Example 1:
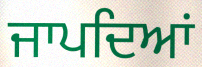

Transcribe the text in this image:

ਜਾਪਦਿਆਂ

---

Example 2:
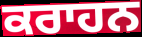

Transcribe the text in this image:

ਕਰਾਹਨ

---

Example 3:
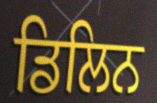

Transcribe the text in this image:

ਡਿਲਿਨ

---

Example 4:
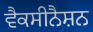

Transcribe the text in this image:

ਵੈਕਸੀਨੈਸ਼ਨ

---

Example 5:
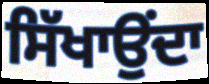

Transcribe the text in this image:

ਸਿੱਖਾਉਂਦਾ